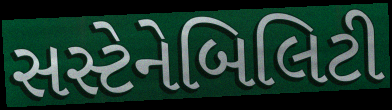
સસ્ટેનેબિલિટી